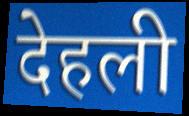
देहली